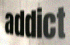
addict